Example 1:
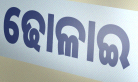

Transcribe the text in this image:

ଢୋଳାଇ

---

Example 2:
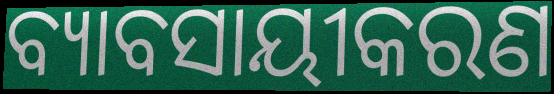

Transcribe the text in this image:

ବ୍ୟାବସାୟୀକରଣ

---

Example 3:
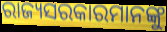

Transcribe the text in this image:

ରାଜ୍ୟସରକାରମାନଙ୍କୁ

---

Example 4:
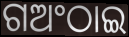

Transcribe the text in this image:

ଗଅଂଠାଇ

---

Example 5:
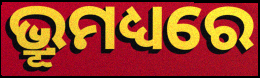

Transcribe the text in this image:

ଭ୍ରୂମଧ୍ୟରେ